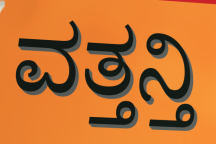
ವತ್ತನ್ತಿ